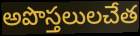
అపొస్తలులచేత